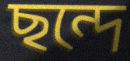
ছন্দে